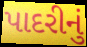
પાદરીનું